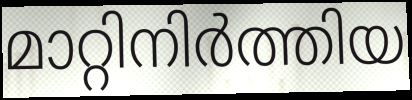
മാറ്റിനിർത്തിയ